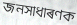
জনসাধাৰণক